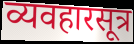
व्यवहारसूत्र